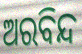
ଅରବିନ୍ଦ